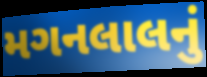
મગનલાલનું